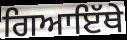
ਗਿਆਇੱਥੇ